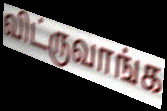
விட்ருவாங்க